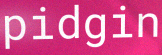
pidgin